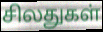
சிலதுகள்